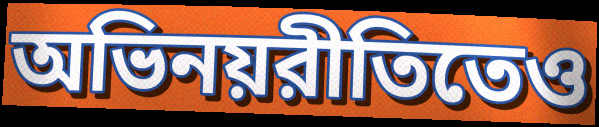
অভিনয়রীতিতেও